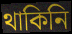
থাকিনি